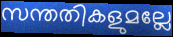
സന്തതികളുമല്ലേ